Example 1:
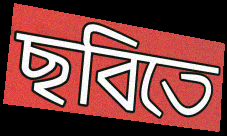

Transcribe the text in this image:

ছবিতে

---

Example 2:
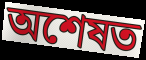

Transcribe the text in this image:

অশেষত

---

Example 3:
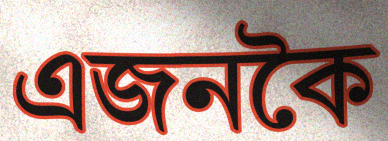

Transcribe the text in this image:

এজনকৈ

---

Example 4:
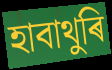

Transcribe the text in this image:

হাবাথুৰি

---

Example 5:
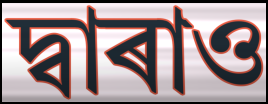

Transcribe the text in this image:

দ্বাৰাও